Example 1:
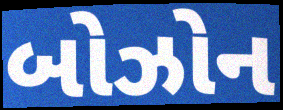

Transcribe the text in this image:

બોઝોન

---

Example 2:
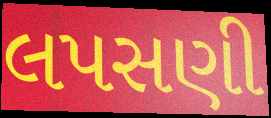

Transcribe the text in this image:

લપસણી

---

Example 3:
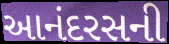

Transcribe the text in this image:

આનંદરસની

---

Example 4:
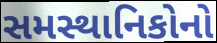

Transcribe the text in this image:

સમસ્થાનિકોનો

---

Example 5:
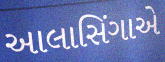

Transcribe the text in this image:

આલાસિંગાએ